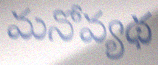
మనోవ్యథ